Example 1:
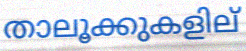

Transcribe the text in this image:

താലൂക്കുകളില്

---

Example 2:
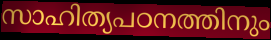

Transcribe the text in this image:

സാഹിത്യപഠനത്തിനും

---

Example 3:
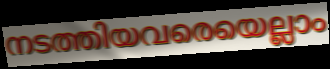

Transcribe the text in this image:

നടത്തിയവരെയെല്ലാം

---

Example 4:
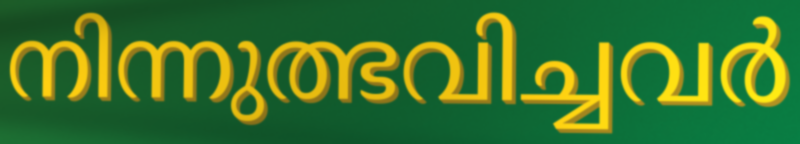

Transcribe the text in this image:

നിന്നുത്ഭവിച്ചവർ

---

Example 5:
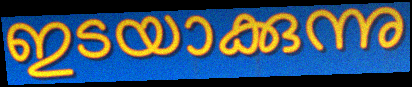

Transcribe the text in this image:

ഇടയാക്കുന്നു